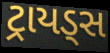
ટ્રાયડ્સ